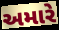
અમારે